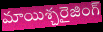
మాయిశ్చరైజింగ్